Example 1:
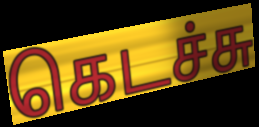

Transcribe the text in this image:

கெடச்சு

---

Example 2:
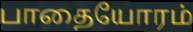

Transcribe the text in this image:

பாதையோரம்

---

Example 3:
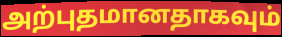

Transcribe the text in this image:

அற்புதமானதாகவும்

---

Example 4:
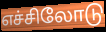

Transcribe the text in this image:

எச்சிலோடு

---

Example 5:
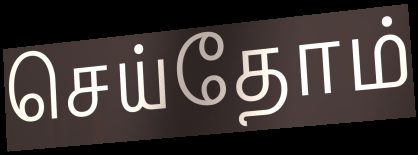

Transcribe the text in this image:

செய்தோம்